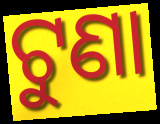
ଟୁଣା